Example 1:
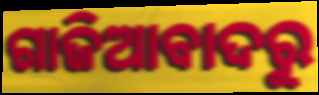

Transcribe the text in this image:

ଗାଜିଆବାଦରୁ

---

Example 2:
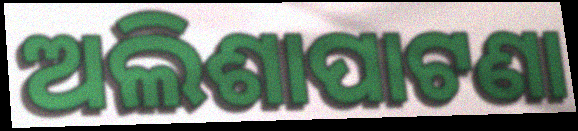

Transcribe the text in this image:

ଅଲିଶାପାଟଣା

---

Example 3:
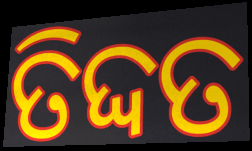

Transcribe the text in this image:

ତିଦ୍ଦତ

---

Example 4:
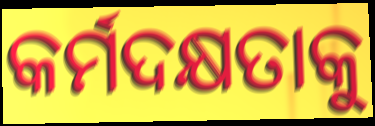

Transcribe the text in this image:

କର୍ମଦକ୍ଷତାକୁ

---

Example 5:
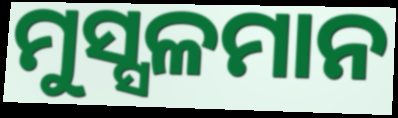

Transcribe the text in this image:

ମୁସ୍ସଳମାନ